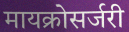
मायक्रोसर्जरी